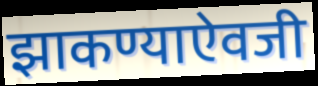
झाकण्याऐवजी